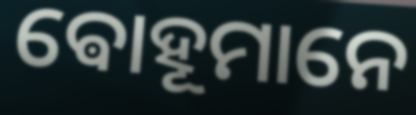
ଵୋହୂମାନେ